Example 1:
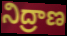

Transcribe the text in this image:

నిద్రాణ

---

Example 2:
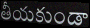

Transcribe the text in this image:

తీయకుండా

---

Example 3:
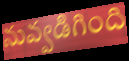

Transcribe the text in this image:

నువ్వడిగింది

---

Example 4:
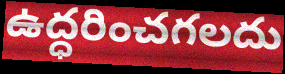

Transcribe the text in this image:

ఉద్ధరించగలదు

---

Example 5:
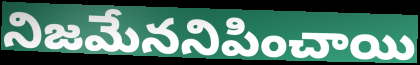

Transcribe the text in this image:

నిజమేననిపించాయి